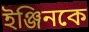
ইঞ্জিনকে